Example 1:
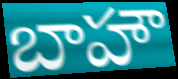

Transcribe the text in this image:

బాహౌ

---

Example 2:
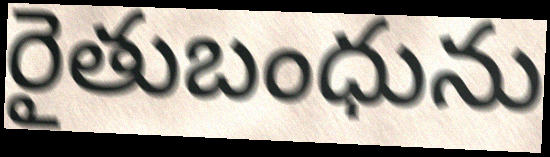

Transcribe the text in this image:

రైతుబంధును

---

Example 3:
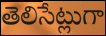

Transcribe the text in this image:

తెలిసేట్లుగా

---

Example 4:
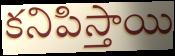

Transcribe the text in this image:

కనిపిస్తాయి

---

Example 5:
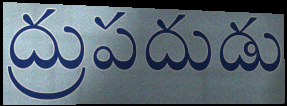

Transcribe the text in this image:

ద్రుపదుడు